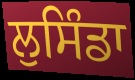
ਲੁਸਿੰਡਾ